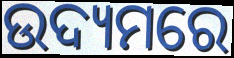
ଉଦ୍ୟମରେ